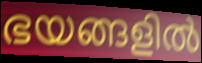
ഭയങ്ങളിൽ